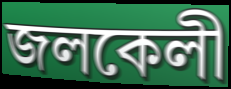
জলকেলী